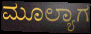
ಮೂಲ್ಯಾಗ